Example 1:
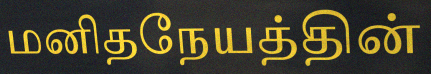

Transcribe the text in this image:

மனிதநேயத்தின்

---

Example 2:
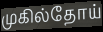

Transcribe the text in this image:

முகில்தோய்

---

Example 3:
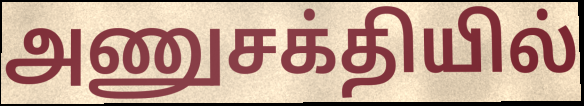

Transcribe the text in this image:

அணுசக்தியில்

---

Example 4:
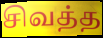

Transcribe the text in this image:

சிவத்த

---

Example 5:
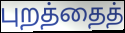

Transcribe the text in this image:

புறத்தைத்